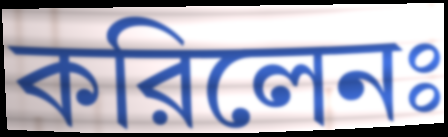
করিলেনঃ